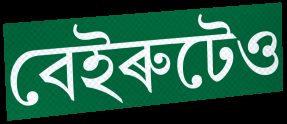
বেইৰুটেও